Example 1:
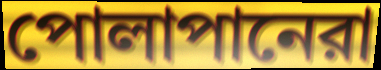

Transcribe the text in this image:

পোলাপানেরা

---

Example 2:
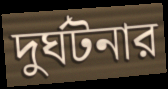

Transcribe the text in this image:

দুর্ঘটনার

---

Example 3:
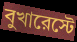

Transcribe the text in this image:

বুখারেস্টে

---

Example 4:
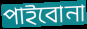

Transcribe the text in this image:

পাইবোনা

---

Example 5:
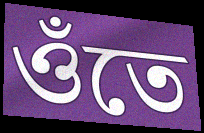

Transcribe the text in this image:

ওঁতে